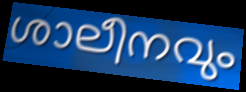
ശാലീനവും